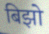
बिझो